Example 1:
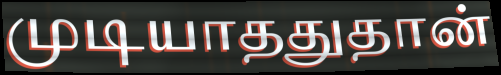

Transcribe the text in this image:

முடியாததுதான்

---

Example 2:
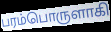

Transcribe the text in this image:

பரம்பொருளாகி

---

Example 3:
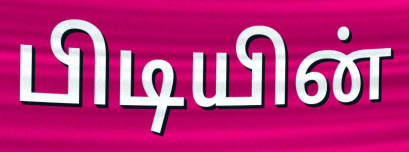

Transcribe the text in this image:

பிடியின்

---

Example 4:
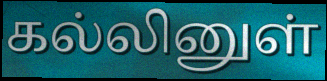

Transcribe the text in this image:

கல்லினுள்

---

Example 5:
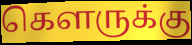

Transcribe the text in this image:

கௌருக்கு